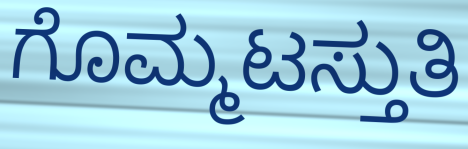
ಗೊಮ್ಮಟಸ್ತುತಿ